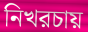
নিখরচায়